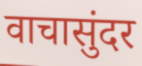
वाचासुंदर